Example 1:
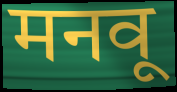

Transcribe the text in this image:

मनवू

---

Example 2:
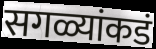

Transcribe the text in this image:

सगळ्यांकडं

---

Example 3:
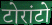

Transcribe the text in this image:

टोरांटो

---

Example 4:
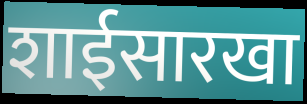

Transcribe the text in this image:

शाईसारखा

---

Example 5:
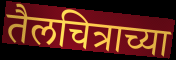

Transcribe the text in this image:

तैलचित्राच्या